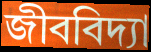
জীববিদ্যা